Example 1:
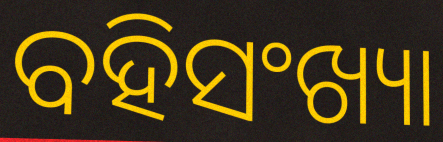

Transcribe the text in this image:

ବହିସଂଖ୍ୟା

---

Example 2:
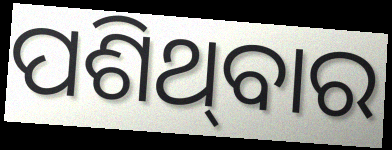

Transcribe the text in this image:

ପଶିଥ୍‌ବାର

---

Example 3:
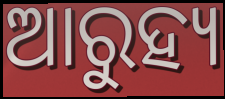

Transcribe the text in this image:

ଆରୁହ୍ୟ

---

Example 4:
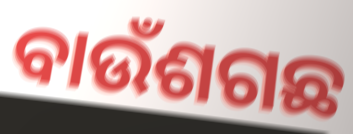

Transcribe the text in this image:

ବାଉଁଶଗଛ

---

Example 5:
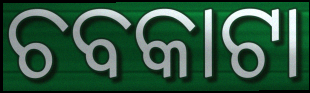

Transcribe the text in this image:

ଚବକାଟା